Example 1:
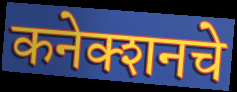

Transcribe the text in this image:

कनेक्शनचे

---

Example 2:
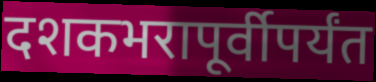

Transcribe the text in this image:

दशकभरापूर्वीपर्यंत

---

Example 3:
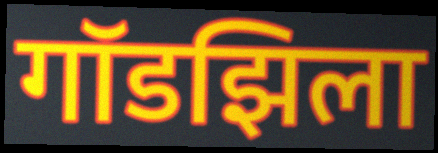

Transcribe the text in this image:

गॉडझिला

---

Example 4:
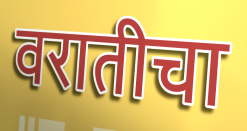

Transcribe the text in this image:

वरातीचा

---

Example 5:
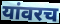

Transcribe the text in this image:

यांवरच